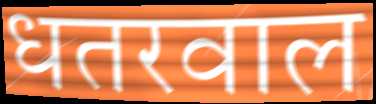
धतरवाल